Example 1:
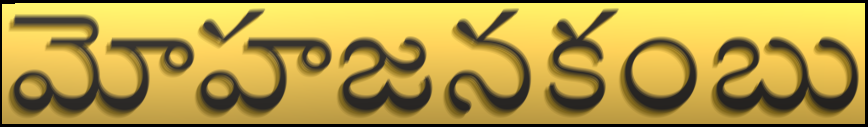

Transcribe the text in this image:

మోహజనకంబు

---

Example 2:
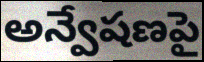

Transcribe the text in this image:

అన్వేషణపై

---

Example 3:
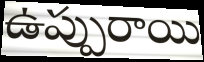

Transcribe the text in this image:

ఉప్పురాయి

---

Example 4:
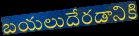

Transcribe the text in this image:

బయలుదేరడానికి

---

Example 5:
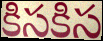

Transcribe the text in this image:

కిసకిస